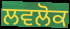
ਲਵਲੋਕ